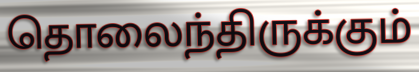
தொலைந்திருக்கும்